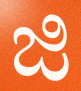
ಜಿ